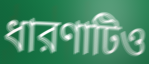
ধারণাটিও